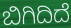
ಬಿಗಿದಿದೆ